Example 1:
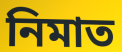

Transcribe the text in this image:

নিমাত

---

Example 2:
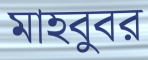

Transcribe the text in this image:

মাহবুবর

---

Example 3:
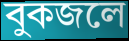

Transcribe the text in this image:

বুকজলে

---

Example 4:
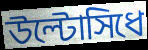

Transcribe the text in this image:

উল্টোসিধে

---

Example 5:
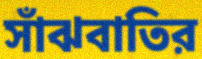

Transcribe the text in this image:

সাঁঝবাতির